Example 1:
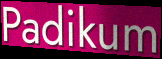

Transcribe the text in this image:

Padikum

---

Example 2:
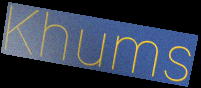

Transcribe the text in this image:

Khums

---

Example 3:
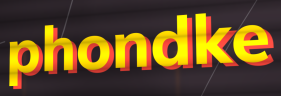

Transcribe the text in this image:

phondke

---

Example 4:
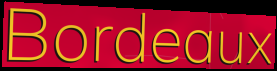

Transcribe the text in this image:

Bordeaux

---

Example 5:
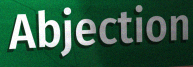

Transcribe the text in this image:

Abjection